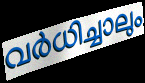
വർധിച്ചാലും